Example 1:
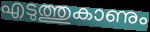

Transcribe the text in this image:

എടുത്തുകാണും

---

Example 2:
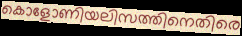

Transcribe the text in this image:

കൊളോണിയലിസത്തിനെതിരെ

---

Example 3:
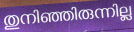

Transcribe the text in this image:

തുനിഞ്ഞിരുന്നില്ല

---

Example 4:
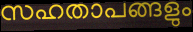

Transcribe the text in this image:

സഹതാപങ്ങളും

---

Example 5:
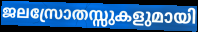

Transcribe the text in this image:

ജലസ്രോതസ്സുകളുമായി